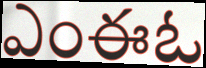
ఎంఈఓ